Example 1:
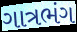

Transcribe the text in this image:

ગાત્રભંગ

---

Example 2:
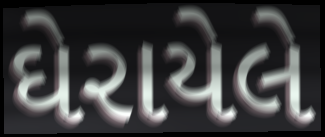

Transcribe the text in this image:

ઘેરાયેલે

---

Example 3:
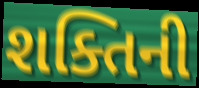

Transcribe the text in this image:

શક્તિની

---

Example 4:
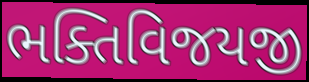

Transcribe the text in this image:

ભક્તિવિજયજી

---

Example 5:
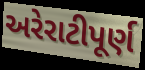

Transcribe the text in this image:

અરેરાટીપૂર્ણ